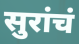
सुरांचं